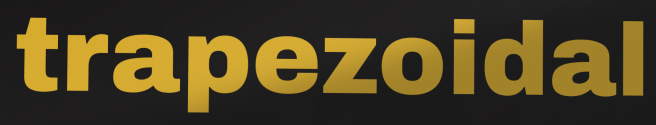
trapezoidal